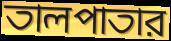
তালপাতার